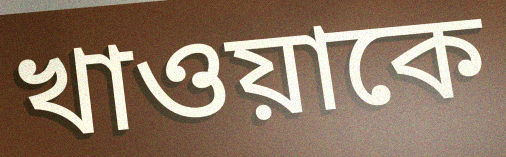
খাওয়াকে